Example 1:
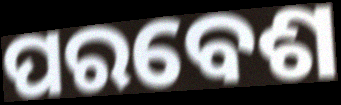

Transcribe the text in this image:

ପରବେଶ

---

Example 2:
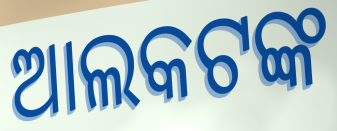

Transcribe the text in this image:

ଆଲକଟଙ୍କ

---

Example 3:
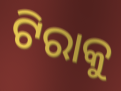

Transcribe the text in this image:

ଟିରାକୁ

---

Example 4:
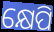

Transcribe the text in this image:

କ୍ଷେପି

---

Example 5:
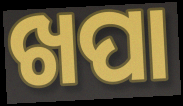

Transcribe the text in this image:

ଖପା